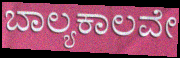
ಬಾಲ್ಯಕಾಲವೇ